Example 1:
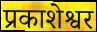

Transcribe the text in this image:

प्रकाशेश्वर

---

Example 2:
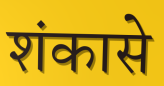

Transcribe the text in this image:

शंकासे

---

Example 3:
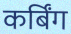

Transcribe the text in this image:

कर्बिंग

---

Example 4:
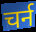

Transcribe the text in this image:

चर्न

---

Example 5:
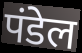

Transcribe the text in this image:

पंडेल